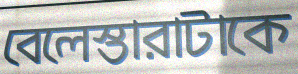
বেলেস্তারাটাকে